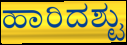
ಹಾರಿದಶ್ಟು